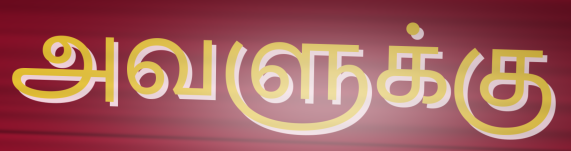
அவளுக்கு